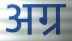
अग्र